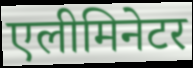
एलीमिनेटर